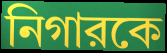
নিগারকে